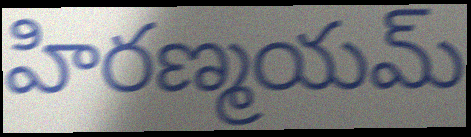
హిరణ్మయమ్